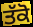
ਤੱਕੋ